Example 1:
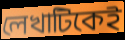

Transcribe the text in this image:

লেখাটিকেই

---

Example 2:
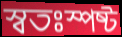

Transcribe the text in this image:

স্বতঃস্পষ্ট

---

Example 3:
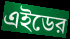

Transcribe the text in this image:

এইডের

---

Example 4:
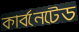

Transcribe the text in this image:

কার্বনেটেড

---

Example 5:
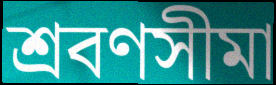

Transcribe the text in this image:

শ্রবণসীমা